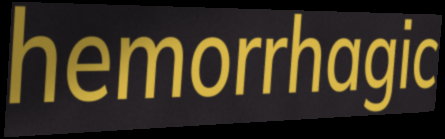
hemorrhagic